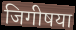
जिगीषया